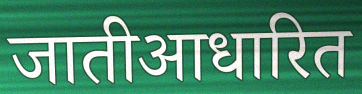
जातीआधारित